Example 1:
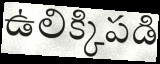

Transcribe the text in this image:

ఉలిక్కిపడి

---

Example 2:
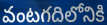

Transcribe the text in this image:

వంటగదిలోనికి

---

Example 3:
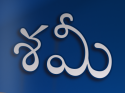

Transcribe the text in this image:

శమీ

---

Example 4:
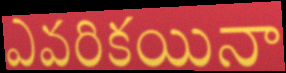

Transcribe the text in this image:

ఎవరికయినా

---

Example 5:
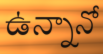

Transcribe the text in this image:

ఉన్నానో